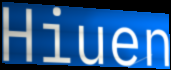
Hiuen